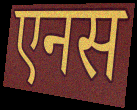
एनस